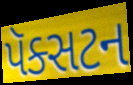
પૅક્સટન